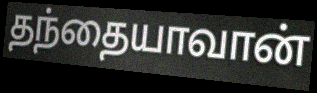
தந்தையாவான்